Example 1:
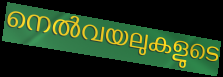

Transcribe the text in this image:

നെൽവയലുകളുടെ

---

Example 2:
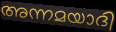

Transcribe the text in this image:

അന്നമയാദി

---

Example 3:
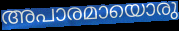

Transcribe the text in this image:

അപാരമായൊരു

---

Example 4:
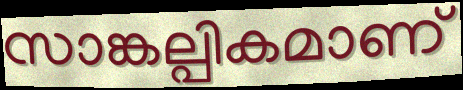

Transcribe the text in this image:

സാങ്കല്പികമാണ്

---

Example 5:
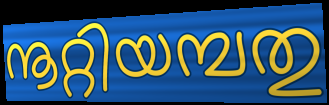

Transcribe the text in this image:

നൂറ്റിയമ്പതു